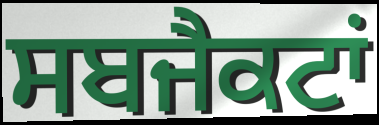
ਸਬਜੈਕਟਾਂ